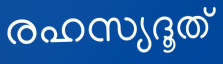
രഹസ്യദൂത്